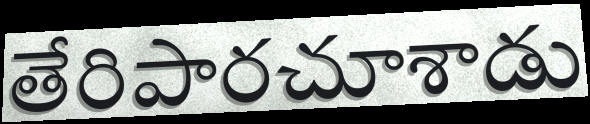
తేరిపారచూశాడు